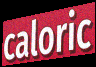
caloric